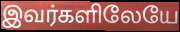
இவர்களிலேயே